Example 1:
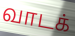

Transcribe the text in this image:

வாடக்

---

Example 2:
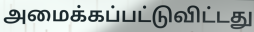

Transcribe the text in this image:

அமைக்கப்பட்டுவிட்டது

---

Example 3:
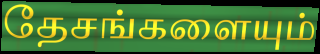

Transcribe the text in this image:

தேசங்களையும்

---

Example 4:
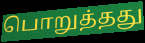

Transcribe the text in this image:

பொறுத்தது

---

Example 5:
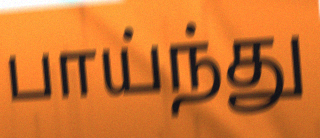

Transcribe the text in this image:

பாய்ந்து